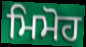
ਮਿਮੋਹ